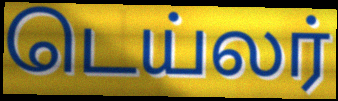
டெய்லர்